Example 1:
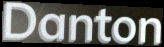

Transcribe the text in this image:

Danton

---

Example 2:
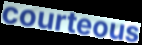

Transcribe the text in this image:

courteous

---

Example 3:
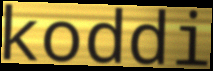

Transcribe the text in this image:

koddi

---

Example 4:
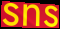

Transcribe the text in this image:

sns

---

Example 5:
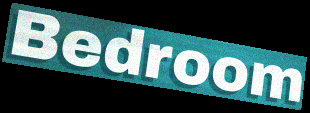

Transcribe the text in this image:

Bedroom